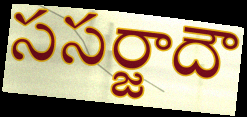
ససర్జాదౌ